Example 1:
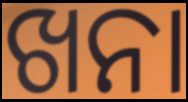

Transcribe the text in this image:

ଖନା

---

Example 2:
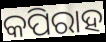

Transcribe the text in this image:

କପିରାହ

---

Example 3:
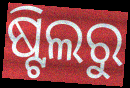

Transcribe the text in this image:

ଷ୍ଟିଲରୁ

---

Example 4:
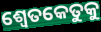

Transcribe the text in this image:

ଶ୍ୱେତକେତୁକୁ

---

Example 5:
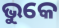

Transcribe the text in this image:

ଭୁକେ